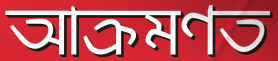
আক্ৰমণত